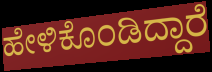
ಹೇಳಿಕೊಂಡಿದ್ದಾರೆ